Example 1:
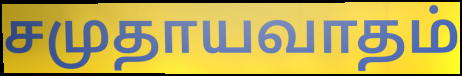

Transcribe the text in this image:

சமுதாயவாதம்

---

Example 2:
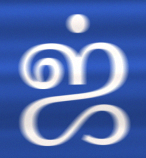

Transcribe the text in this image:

ஜ்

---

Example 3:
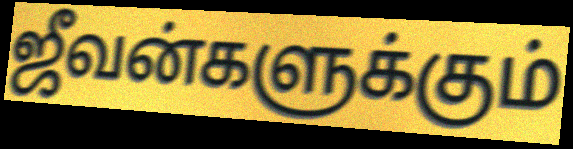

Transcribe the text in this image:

ஜீவன்களுக்கும்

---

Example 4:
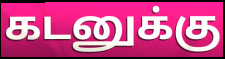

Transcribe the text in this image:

கடனுக்கு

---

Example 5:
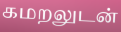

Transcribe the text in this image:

கமறலுடன்